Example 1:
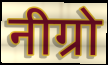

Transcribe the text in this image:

नीग्रो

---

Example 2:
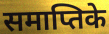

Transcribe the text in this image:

समाप्तिके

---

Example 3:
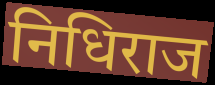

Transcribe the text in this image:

निधिराज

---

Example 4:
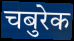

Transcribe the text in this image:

चबुरेक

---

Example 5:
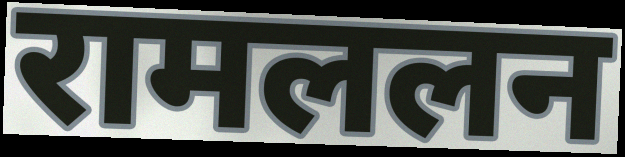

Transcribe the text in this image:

रामललन